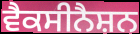
ਵੈਕਸੀਨੈਸ਼ਨ